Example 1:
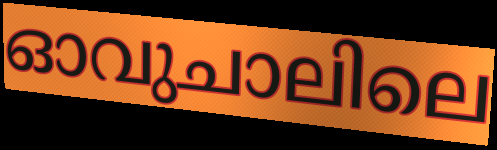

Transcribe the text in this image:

ഓവുചാലിലെ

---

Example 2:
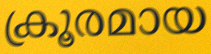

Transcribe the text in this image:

ക്രൂരമായ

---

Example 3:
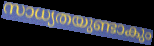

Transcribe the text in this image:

സാധ്യതയുണ്ടാകും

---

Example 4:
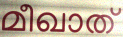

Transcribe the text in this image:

മീഖാത്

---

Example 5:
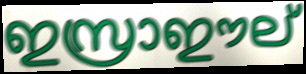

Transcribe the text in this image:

ഇസ്രാഈല്